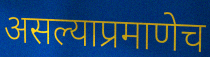
असल्याप्रमाणेच